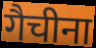
गैचीना